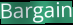
Bargain